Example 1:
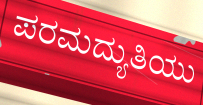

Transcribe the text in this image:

ಪರಮದ್ಯುತಿಯು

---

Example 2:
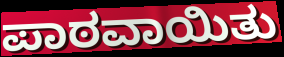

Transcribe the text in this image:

ಪಾಠವಾಯಿತು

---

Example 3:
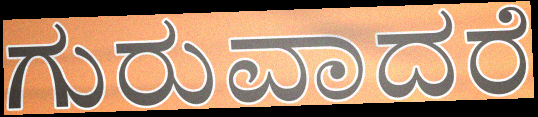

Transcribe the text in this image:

ಗುರುವಾದರೆ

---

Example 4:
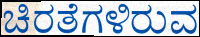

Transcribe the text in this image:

ಚಿರತೆಗಳಿರುವ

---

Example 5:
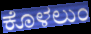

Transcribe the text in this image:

ಕೊಳಲುಂ